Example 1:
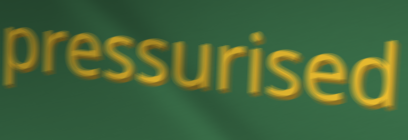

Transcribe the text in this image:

pressurised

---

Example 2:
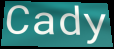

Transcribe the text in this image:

Cady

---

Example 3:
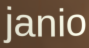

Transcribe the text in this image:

janio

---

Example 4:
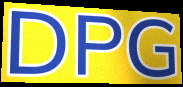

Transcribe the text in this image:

DPG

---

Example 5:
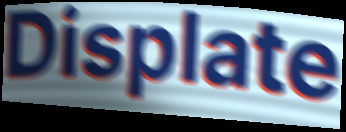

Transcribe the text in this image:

Displate